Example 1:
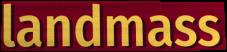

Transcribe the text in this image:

landmass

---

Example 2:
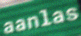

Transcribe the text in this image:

aanlas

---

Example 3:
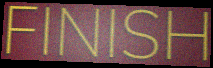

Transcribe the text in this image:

FINISH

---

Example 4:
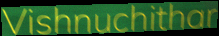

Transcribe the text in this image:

Vishnuchithar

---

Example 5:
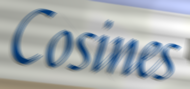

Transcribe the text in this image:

Cosines